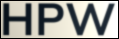
HPW